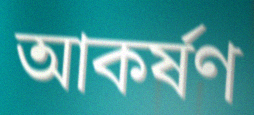
আকৰ্ষণ